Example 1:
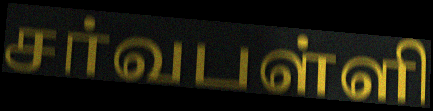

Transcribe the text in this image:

சர்வபள்ளி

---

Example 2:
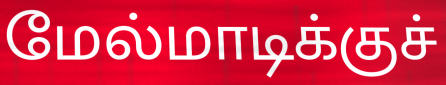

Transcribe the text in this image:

மேல்மாடிக்குச்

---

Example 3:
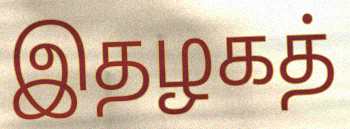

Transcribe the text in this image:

இதழகத்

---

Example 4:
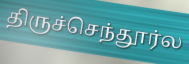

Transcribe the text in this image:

திருச்செந்தூர்ல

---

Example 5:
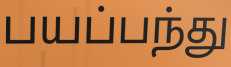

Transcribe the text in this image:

பயப்பந்து